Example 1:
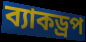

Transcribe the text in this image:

ব্যাকড্রপ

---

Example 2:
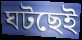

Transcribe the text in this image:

ঘটছেই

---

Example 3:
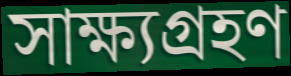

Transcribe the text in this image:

সাক্ষ্যগ্রহণ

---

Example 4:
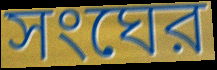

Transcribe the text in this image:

সংঘের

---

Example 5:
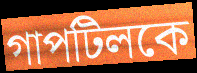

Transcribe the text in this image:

গাপটিলকে